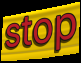
stop